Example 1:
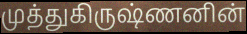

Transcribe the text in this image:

முத்துகிருஷ்ணனின்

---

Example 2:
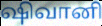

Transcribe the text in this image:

ஷிவானி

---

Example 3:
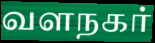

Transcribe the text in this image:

வளநகர்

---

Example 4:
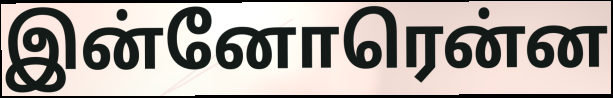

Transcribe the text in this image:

இன்னோரென்ன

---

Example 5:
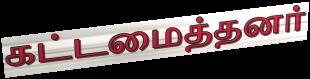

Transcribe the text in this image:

கட்டமைத்தனர்